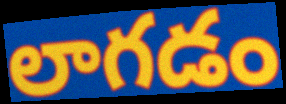
లాగడం